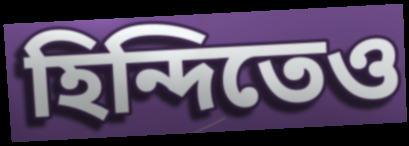
হিন্দিতেও